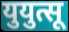
युयुत्सू